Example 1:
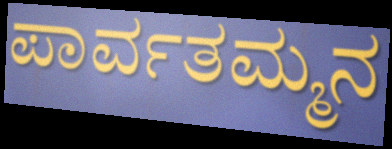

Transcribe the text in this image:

ಪಾರ್ವತಮ್ಮನ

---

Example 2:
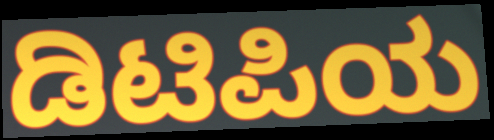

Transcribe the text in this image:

ಡಿಟಿಪಿಯ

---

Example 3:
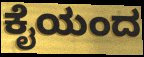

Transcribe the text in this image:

ಕೈಯಂದ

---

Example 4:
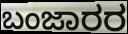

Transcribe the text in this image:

ಬಂಜಾರರ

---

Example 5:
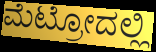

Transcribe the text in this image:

ಮೆಟ್ರೋದಲ್ಲಿ